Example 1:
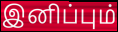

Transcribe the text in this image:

இனிப்பும்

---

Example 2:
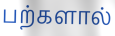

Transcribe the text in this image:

பற்களால்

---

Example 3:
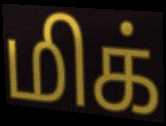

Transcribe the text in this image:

மிக்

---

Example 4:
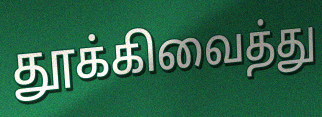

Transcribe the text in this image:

தூக்கிவைத்து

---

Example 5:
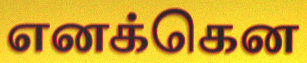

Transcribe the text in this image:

எனக்கென